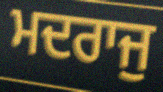
ਮਦਰਾਜੁ